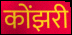
कोंझरी